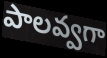
పాలవ్వగా